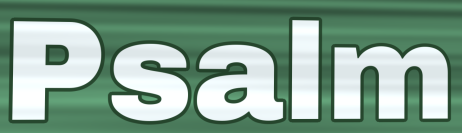
Psalm